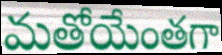
మతోయేంతగా